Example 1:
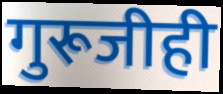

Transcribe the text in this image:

गुरूजीही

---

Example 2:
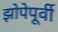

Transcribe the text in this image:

झोपेपूर्वी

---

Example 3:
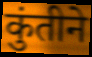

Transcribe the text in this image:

कुंतीने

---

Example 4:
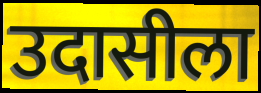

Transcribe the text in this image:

उदासीला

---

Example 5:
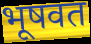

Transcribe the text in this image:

भूषवत